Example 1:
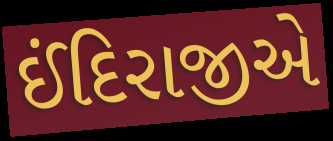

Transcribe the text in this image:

ઈંદિરાજીએ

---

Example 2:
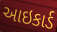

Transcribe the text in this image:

આઇકાર્ડ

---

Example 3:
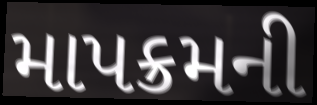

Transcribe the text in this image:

માપક્રમની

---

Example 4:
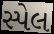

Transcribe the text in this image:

સ્પેલ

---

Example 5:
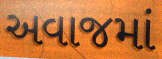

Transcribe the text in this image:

અવાજમાં